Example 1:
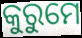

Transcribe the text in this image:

କୁରୁମେ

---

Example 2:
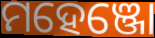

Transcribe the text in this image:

ମହେଞ୍ଜୋ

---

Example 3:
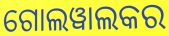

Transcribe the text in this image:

ଗୋଲୱାଲକର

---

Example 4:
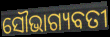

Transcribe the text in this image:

ସୌଭାଗ୍ୟବତୀ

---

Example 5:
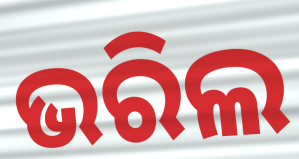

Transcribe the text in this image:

ଭରିଲ